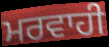
ਮਰਵਾਹੀ